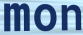
mon